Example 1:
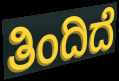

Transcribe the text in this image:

ತಿಂದಿದೆ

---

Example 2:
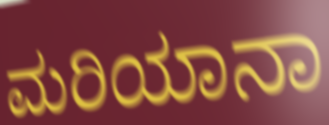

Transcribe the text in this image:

ಮರಿಯಾನಾ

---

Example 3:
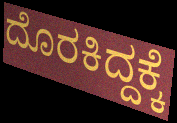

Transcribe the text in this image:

ದೊರಕಿದ್ದಕ್ಕೆ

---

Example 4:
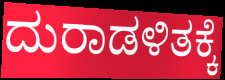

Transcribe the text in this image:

ದುರಾಡಳಿತಕ್ಕೆ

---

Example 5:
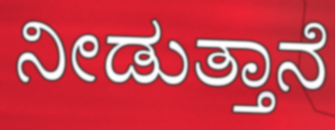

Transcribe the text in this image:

ನೀಡುತ್ತಾನೆ